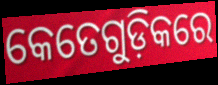
କେତେଗୁଡ଼ିକରେ